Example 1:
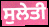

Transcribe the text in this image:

ਸੁਲੇਤੀ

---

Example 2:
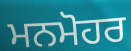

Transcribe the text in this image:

ਮਨਮੋਹਰ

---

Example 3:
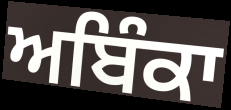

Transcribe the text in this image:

ਅਬਿੰਕਾ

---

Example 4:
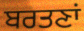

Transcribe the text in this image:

ਬਰਤਣਾਂ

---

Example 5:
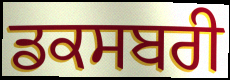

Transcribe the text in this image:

ਡਕਸਬਰੀ